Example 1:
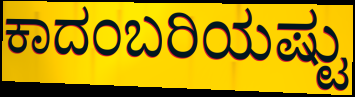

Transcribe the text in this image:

ಕಾದಂಬರಿಯಷ್ಟು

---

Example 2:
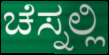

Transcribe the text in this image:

ಚೆಸ್ನಲ್ಲಿ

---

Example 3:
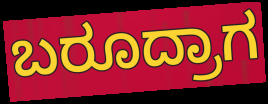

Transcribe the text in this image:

ಬರೂದ್ರಾಗ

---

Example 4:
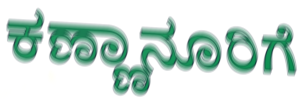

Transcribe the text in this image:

ಕಣ್ಣಾನೂರಿಗೆ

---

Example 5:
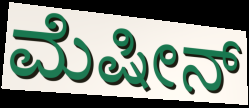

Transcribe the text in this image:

ಮೆಷೀನ್